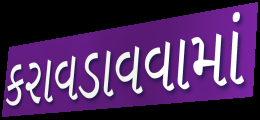
કરાવડાવવામાં